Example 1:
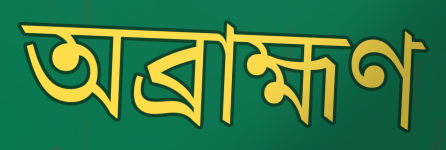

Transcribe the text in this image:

অব্রাহ্মণ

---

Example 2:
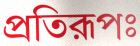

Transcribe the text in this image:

প্রতিরূপঃ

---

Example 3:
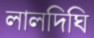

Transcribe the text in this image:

লালদিঘি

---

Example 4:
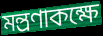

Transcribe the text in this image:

মন্ত্রণাকক্ষে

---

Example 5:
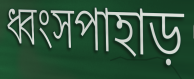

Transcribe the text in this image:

ধ্বংসপাহাড়